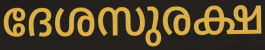
ദേശസുരക്ഷ